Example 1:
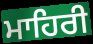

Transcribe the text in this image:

ਮਾਹਿਰੀ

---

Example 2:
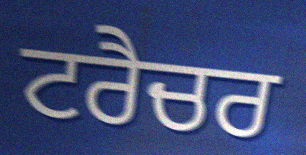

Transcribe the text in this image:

ਟਰੈਚਰ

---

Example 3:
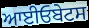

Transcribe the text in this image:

ਆਈਓਬੇਟਸ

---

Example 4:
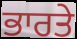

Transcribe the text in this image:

ਭਾਰਤੇ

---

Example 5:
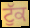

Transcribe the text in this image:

ਟੁੱਕ